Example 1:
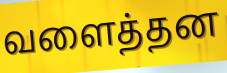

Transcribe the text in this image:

வளைத்தன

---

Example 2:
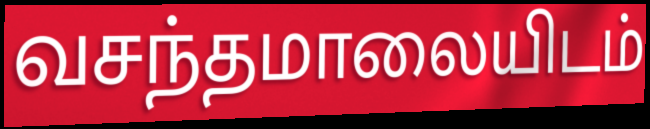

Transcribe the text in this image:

வசந்தமாலையிடம்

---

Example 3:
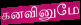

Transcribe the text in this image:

கனவினுமே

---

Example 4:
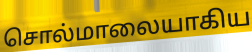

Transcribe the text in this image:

சொல்மாலையாகிய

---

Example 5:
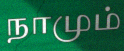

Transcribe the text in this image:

நாமும்